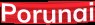
Porunai